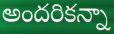
అందరికన్నా